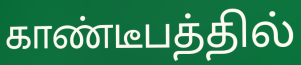
காண்டீபத்தில்